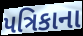
પત્રિકાના